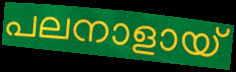
പലനാളായ്